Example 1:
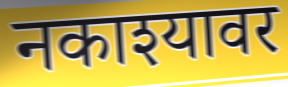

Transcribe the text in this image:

नकाश्यावर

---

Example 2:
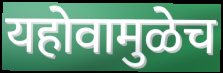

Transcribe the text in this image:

यहोवामुळेच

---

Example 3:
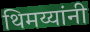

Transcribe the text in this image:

थिमय्यांनी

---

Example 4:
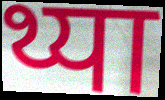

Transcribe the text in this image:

थ्या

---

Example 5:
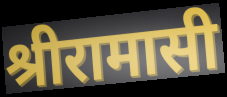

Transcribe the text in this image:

श्रीरामासी